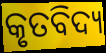
କୃତବିଦ୍ଯ